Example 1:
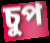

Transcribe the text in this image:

চুপ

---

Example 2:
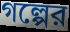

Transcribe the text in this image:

গল্পের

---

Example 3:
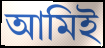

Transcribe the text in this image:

আমিই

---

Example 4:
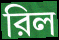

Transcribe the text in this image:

রিল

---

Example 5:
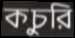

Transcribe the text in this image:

কচুরি